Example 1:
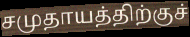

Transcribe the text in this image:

சமுதாயத்திற்குச்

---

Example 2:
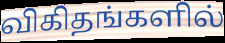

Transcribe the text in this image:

விகிதங்களில்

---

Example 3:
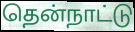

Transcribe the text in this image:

தென்நாட்டு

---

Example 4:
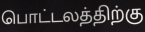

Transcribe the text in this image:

பொட்டலத்திற்கு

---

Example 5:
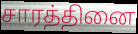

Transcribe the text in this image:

சாரத்தினை